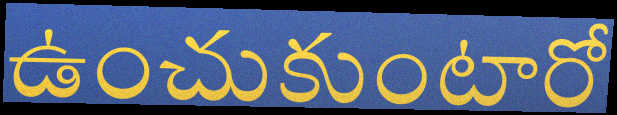
ఉంచుకుంటారో